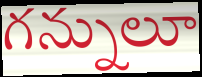
గన్నులూ